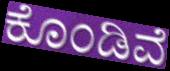
ಕೊಂಡಿವೆ